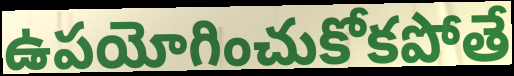
ఉపయోగించుకోకపోతే